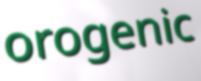
orogenic